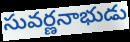
సువర్ణనాభుడు